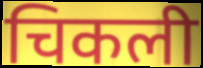
चिकली